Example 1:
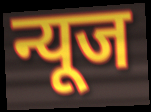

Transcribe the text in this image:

न्यूज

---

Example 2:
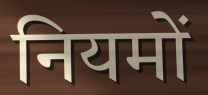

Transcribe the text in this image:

नियमों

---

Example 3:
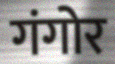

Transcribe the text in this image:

गंगोर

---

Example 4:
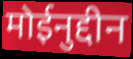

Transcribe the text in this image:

मोईनुद्दीन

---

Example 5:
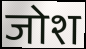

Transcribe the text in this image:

जोश